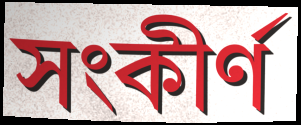
সংকীর্ণ